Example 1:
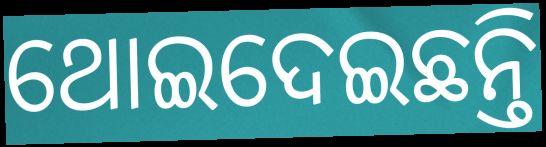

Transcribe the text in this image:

ଥୋଇଦେଇଛନ୍ତି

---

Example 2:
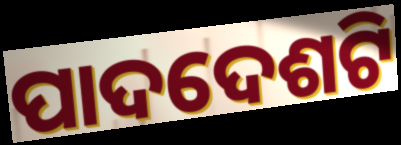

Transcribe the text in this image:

ପାଦଦେଶଟି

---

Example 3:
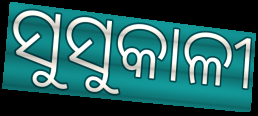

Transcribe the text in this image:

ସୁସୁକାଳୀ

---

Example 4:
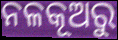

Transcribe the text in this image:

ନଳକୂଅରୁ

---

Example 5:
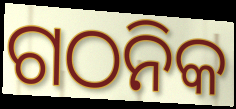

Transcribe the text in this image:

ଗଠନିକ